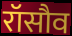
रॉसौव